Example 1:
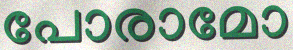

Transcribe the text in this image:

പോരാമോ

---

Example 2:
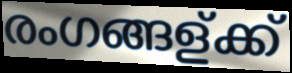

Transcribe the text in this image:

രംഗങ്ങള്ക്ക്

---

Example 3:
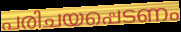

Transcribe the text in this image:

പരിചയപ്പെടണം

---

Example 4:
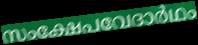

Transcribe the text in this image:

സംക്ഷേപവേദാർഥം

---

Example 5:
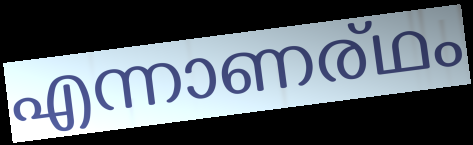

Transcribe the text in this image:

എന്നാണര്ഥം